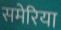
समेरिया